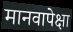
मानवापेक्षा